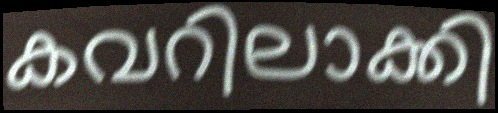
കവറിലാക്കി